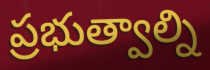
ప్రభుత్వాల్ని